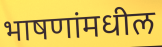
भाषणांमधील